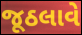
જૂઠલાવે